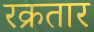
रक्रतार